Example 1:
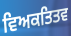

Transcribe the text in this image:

ਵਿਅਕਤਿਤਵ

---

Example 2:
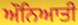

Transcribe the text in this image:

ਔਨਿਆਤੀ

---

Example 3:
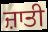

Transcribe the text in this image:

ਜ਼ਾਤੀ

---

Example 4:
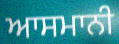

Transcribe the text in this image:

ਆਸਮਾਨੀ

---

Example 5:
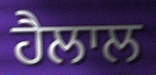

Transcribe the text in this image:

ਹੈਲਾਲ